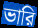
ভারি